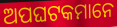
ଅପଘଟକମାନେ